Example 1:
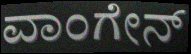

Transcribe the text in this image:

ವಾಂಗೇನ್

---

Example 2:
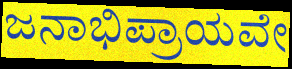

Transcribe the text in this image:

ಜನಾಭಿಪ್ರಾಯವೇ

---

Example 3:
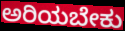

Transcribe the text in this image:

ಅರಿಯಬೇಕು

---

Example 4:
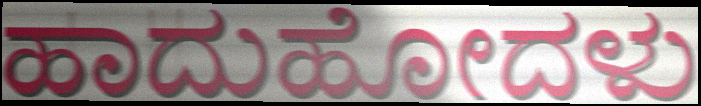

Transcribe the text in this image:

ಹಾದುಹೋದಳು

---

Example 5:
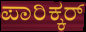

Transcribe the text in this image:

ಪಾರಿಕ್ಕರ್